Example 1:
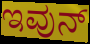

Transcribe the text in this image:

ಇವುನ್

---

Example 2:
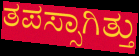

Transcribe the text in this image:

ತಪಸ್ಸಾಗಿತ್ತು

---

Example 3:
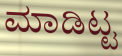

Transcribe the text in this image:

ಮಾಡಿಟ್ಟ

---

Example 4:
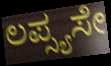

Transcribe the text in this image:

ಲಪ್ಸ್ಯಸೇ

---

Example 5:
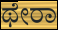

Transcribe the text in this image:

ಥೇರಾ